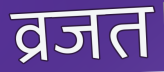
व्रजत